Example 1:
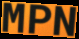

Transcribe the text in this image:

MPN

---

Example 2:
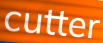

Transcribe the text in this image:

cutter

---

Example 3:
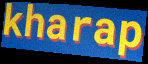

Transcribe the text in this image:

kharap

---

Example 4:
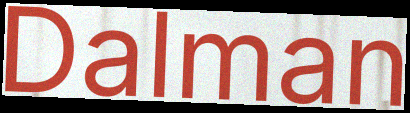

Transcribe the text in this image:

Dalman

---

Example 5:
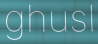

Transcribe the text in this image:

ghusl